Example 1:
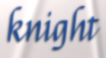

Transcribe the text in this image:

knight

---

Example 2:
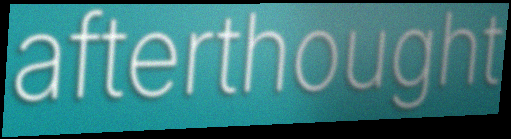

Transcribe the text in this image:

afterthought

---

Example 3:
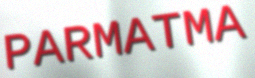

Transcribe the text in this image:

PARMATMA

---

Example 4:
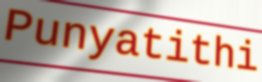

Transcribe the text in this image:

Punyatithi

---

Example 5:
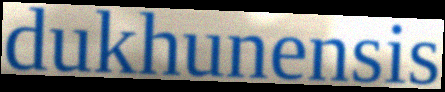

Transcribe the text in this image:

dukhunensis